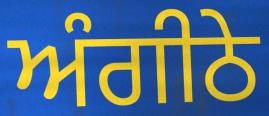
ਅੰਗੀਠੇ